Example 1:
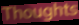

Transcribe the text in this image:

Thoughts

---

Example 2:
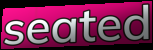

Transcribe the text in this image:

seated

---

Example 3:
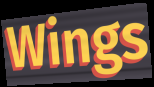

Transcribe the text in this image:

Wings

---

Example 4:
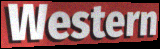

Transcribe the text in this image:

Western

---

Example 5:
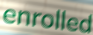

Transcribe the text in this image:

enrolled